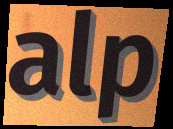
alp